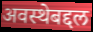
अवस्थेबद्दल